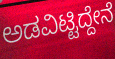
ಅಡವಿಟ್ಟಿದ್ದೇನೆ